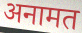
अनामत